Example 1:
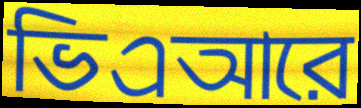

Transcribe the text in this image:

ভিএআরে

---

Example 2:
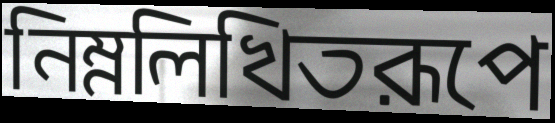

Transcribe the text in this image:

নিম্নলিখিতরূপে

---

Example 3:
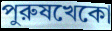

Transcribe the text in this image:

পুরুষখেকো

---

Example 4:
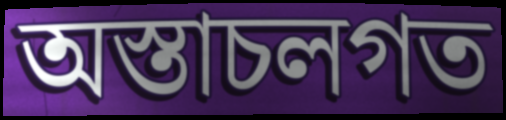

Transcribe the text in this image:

অস্তাচলগত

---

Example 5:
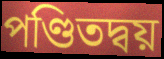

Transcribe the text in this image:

পণ্ডিতদ্বয়